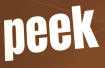
peek